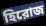
হিরোজ